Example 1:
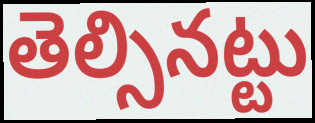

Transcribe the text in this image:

తెల్సినట్టు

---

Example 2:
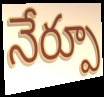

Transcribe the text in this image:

నేర్పూ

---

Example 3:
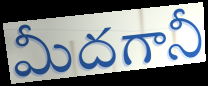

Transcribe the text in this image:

మీదగానీ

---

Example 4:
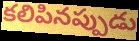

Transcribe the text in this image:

కలిపినప్పుడు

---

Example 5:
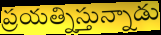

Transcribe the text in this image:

ప్రయత్నిస్తున్నాడు